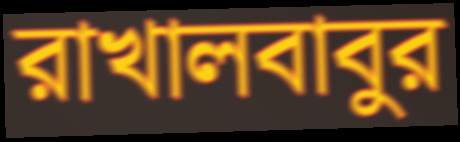
রাখালবাবুর